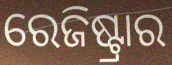
ରେଜିଷ୍ଟ୍ରାର